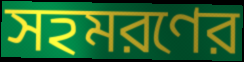
সহমরণের